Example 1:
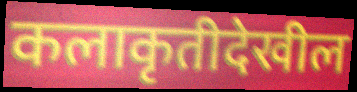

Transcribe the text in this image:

कलाकृतीदेखील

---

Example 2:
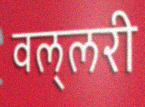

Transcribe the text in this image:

वल्लरी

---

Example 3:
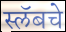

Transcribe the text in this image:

स्लॅबचे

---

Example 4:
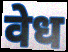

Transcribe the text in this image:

वेध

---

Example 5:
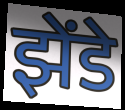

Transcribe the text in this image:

झेंडे